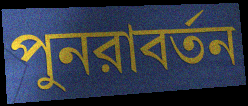
পুনরাবর্তন